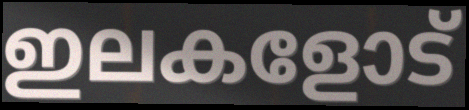
ഇലകളോട്